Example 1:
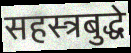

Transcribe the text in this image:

सहस्त्रबुद्धे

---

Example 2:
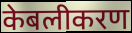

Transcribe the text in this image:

केबलीकरण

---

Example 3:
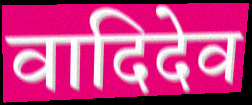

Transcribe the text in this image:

वादिदेव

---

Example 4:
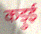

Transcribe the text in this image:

कड़ुई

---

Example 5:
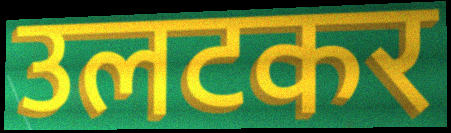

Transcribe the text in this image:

उलटकर